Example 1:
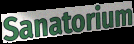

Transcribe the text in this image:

Sanatorium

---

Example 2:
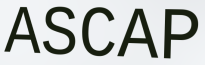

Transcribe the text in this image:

ASCAP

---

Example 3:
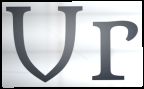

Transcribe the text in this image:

Ur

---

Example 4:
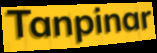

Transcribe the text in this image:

Tanpinar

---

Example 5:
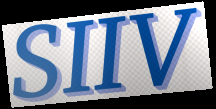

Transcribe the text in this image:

SIIV